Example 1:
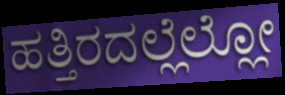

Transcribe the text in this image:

ಹತ್ತಿರದಲ್ಲೆಲ್ಲೋ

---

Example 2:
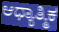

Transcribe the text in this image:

ಆಧ್ಯಾತ್ಮಿಕ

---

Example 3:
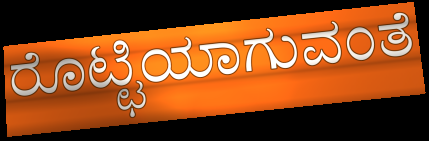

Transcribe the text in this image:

ರೊಟ್ಟಿಯಾಗುವಂತೆ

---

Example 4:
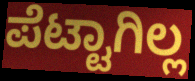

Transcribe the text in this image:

ಪೆಟ್ಟಾಗಿಲ್ಲ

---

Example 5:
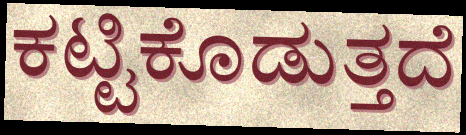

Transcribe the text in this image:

ಕಟ್ಟಿಕೊಡುತ್ತದೆ